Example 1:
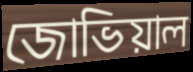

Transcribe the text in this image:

জোভিয়াল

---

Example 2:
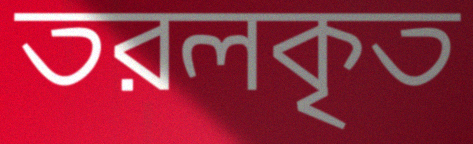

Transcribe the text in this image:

তরলকৃত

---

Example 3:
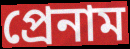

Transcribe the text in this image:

প্রেনাম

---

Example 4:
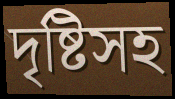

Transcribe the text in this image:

দৃষ্টিসহ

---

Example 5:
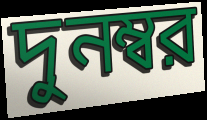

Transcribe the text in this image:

দুনম্বর